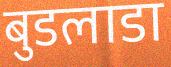
बुडलाडा